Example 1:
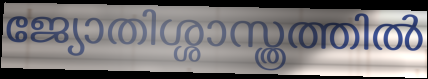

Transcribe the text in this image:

ജ്യോതിശ്ശാസ്ത്രത്തിൽ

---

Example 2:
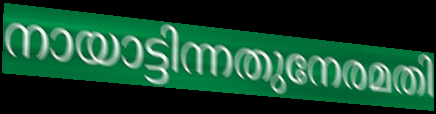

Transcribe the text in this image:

നായാട്ടിന്നതുനേരമതി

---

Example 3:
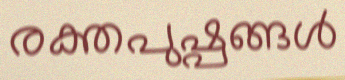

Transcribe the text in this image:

രക്തപുഷ്പങ്ങൾ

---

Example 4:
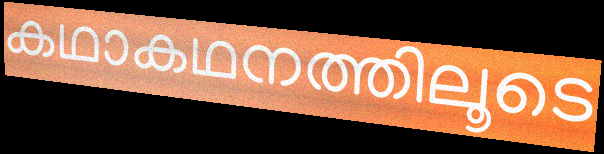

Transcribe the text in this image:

കഥാകഥനത്തിലൂടെ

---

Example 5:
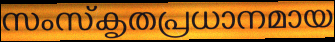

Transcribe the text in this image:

സംസ്‌കൃതപ്രധാനമായ